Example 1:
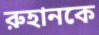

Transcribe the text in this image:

রুহানকে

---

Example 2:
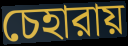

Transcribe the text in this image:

চেহারায়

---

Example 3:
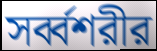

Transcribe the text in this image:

সর্ব্বশরীর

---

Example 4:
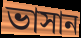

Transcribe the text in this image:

ভাসান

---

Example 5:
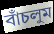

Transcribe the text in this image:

বাঁচলুম